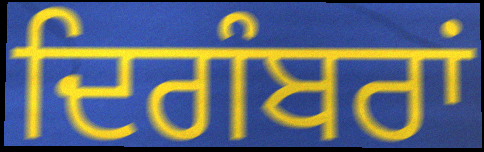
ਦਿਗੰਬਰਾਂ